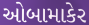
ઓબામાકેર